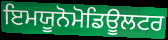
ਇਮਯੂਨੋਮੋਡਿਊਲਟਰ